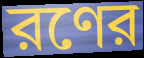
রণের